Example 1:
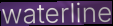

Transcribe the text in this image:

waterline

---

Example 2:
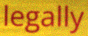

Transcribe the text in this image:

legally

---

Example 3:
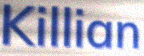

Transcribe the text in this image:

Killian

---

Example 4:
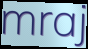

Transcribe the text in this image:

mraj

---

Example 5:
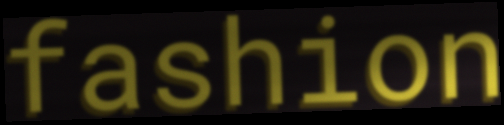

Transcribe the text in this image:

fashion